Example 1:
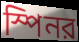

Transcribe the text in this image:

স্পিনর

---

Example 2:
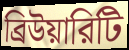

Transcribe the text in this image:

ব্রিউয়ারিটি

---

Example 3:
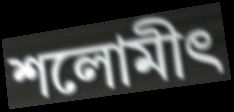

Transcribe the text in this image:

শলোমীৎ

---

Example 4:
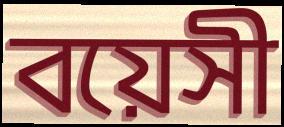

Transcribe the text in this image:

বয়েসী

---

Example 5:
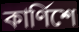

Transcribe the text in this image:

কার্ণিশে